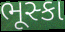
ભૂસ્કા